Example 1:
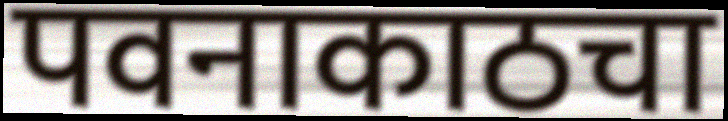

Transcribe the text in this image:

पवनाकाठचा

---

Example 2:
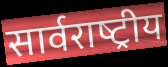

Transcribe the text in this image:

सार्वराष्ट्रीय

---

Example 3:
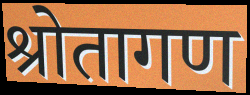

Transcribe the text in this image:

श्रोतागण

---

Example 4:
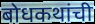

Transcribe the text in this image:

बोधकथांची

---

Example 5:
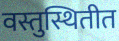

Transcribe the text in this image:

वस्तुस्थितीत